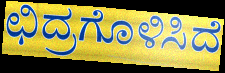
ಛಿದ್ರಗೊಳಿಸಿದೆ